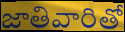
జాతివారితో